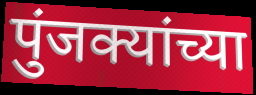
पुंजक्यांच्या